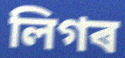
লিগৰ